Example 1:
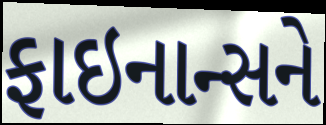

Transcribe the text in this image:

ફાઇનાન્સને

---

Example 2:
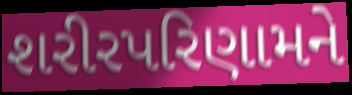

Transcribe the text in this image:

શરીરપરિણામને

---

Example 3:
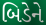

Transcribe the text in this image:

બિડેને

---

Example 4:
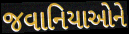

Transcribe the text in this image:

જવાનિયાઓને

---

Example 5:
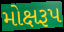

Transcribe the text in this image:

મોક્ષરૂપ